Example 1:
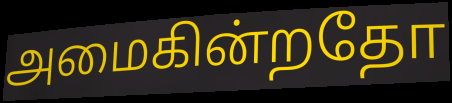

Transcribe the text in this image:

அமைகின்றதோ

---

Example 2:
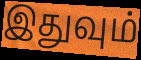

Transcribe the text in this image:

இதுவும்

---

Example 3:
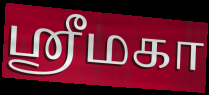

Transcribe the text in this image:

ஸ்ரீமகா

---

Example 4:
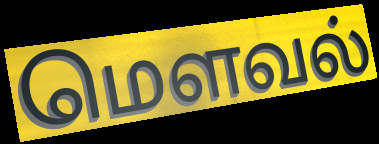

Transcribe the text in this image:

மௌவல்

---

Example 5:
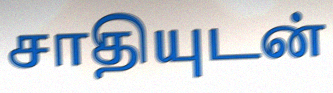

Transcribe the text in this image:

சாதியுடன்